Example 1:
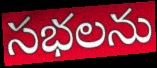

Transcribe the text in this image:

సభలను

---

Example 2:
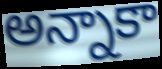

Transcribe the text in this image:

అన్నాకా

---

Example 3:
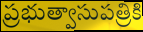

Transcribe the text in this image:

ప్రభుత్వాసుపత్రికి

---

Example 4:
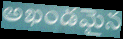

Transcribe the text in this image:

అఖండమైన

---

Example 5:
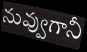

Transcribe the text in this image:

నువ్వుగానీ